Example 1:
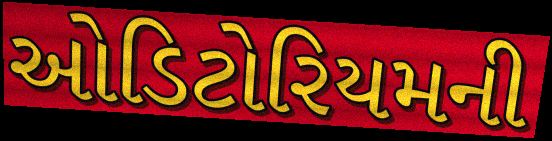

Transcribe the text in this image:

ઓડિટોરિયમની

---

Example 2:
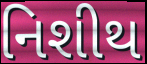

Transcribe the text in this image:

નિશીથ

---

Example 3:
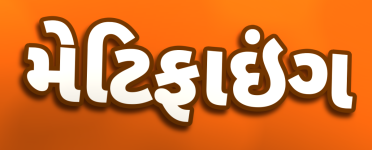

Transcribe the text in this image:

મેટિફાઇંગ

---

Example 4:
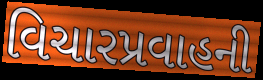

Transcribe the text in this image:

વિચારપ્રવાહની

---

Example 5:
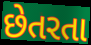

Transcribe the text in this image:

છેતરતા